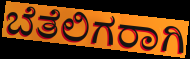
ಬೆತೆಲಿಗರಾಗಿ